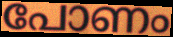
പോണം